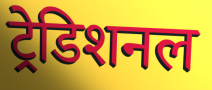
ट्रेडिशनल